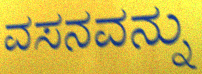
ವಸನವನ್ನು